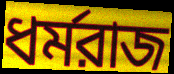
ধর্মরাজ